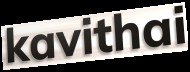
kavithai